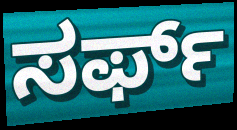
ಸರ್ಫ್